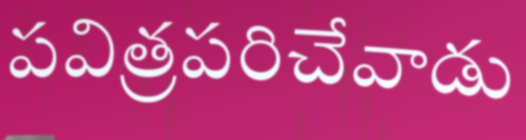
పవిత్రపరిచేవాడు